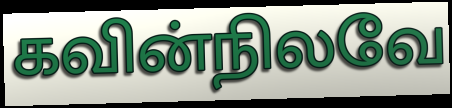
கவின்நிலவே